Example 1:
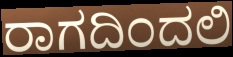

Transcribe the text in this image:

ರಾಗದಿಂದಲಿ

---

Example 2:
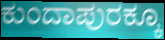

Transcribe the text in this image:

ಕುಂದಾಪುರಕ್ಕೂ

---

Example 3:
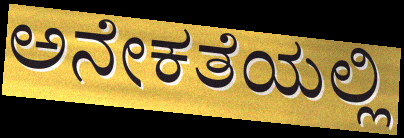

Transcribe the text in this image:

ಅನೇಕತೆಯಲ್ಲಿ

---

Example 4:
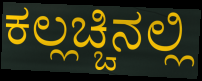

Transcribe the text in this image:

ಕಲ್ಲಚ್ಚಿನಲ್ಲಿ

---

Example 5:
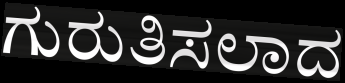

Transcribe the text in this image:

ಗುರುತಿಸಲಾದ